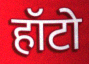
हॉटो